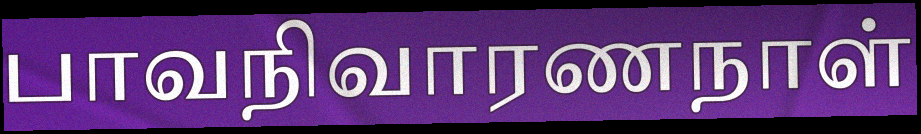
பாவநிவாரணநாள்